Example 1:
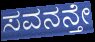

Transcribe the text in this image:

ಸವನನ್ತೇ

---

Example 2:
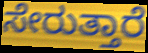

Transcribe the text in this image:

ಸೇರುತ್ತಾರೆ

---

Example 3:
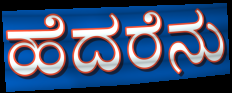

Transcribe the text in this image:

ಹೆದರೆನು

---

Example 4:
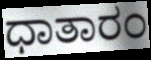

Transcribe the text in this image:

ಧಾತಾರಂ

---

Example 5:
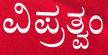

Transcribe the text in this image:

ವಿಪ್ರತ್ವಂ